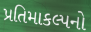
પ્રતિમાકલ્પનો